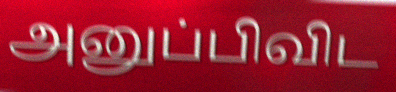
அனுப்பிவிட